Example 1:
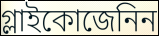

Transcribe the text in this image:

গ্লাইকোজেনিন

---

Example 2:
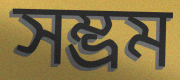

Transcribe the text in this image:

সম্ভ্রম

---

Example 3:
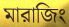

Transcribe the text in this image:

মারাজিং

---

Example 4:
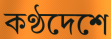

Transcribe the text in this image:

কণ্ঠদেশে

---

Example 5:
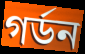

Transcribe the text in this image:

গর্ডন